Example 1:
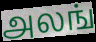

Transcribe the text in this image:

அலங்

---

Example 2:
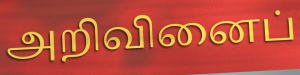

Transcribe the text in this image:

அறிவினைப்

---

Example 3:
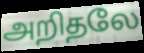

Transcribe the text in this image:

அறிதலே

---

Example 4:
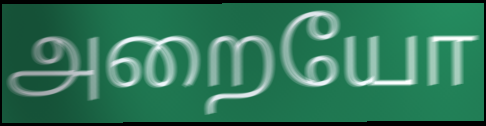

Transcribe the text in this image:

அறையோ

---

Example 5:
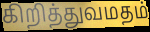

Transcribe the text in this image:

கிறித்துவமதம்